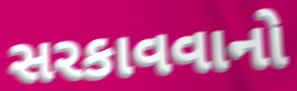
સરકાવવાનો